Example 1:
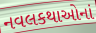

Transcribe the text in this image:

નવલકથાઓનાં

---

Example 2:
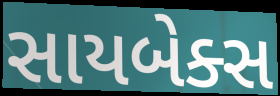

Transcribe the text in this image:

સાયબેક્સ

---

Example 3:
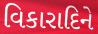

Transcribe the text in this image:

વિકારાદિને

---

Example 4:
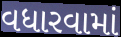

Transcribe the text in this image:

વધારવામાં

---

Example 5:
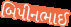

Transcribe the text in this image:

બિપીનભાઈ